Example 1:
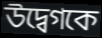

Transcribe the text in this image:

উদ্বেগকে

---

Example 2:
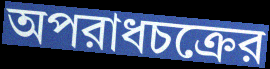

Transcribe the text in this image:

অপরাধচক্রের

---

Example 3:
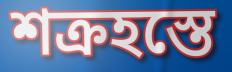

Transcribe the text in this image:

শক্রহস্তে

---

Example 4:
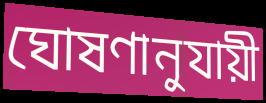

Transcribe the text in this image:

ঘোষণানুযায়ী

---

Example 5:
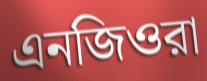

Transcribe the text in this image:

এনজিওরা